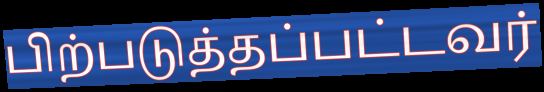
பிற்படுத்தப்பட்டவர்